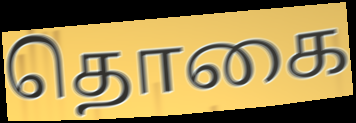
தொகை